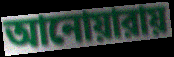
আনোয়ারায়